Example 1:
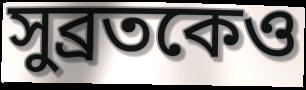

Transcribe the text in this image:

সুব্রতকেও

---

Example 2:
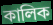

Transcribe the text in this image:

কালিক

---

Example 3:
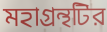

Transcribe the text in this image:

মহাগ্রন্থটির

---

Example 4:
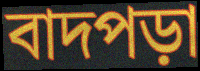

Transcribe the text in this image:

বাদপড়া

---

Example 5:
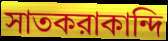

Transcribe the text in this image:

সাতকরাকান্দি